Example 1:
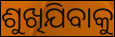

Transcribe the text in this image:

ଶୁଖିଯିବାକୁ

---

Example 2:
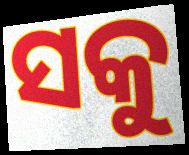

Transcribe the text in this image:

ସକୁ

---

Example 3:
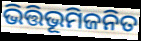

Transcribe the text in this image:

ଭିତ୍ତିଭୂମିଜନିତ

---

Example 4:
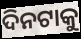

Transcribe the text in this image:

ଦିନଟାକୁ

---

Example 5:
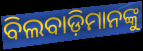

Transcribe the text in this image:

ବିଲବାଡ଼ିମାନଙ୍କୁ